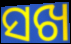
ସଖ